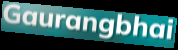
Gaurangbhai